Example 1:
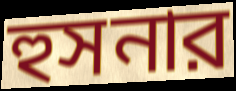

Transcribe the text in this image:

হুসনার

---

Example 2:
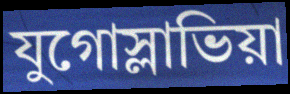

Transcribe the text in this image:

যুগোস্লাভিয়া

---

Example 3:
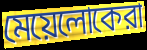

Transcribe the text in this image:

মেয়েলোকেরা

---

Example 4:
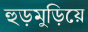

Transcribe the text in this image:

হুড়মুড়িয়ে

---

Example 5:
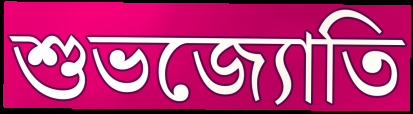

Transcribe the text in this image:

শুভজ্যোতি